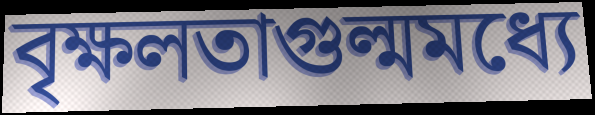
বৃক্ষলতাগুল্মমধ্যে